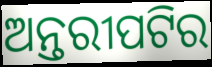
ଅନ୍ତରୀପଟିର